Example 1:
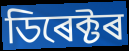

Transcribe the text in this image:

ডিৰেক্টৰ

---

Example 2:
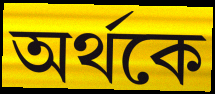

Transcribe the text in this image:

অৰ্থকে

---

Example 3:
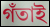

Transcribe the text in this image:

গঁতাই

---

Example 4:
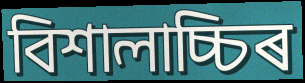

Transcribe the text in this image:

বিশালাচ্চিৰ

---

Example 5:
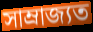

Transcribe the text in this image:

সাম্ৰাজ্যত